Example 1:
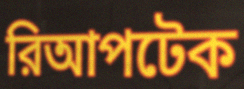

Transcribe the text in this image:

রিআপটেক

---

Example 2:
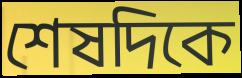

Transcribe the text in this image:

শেষদিকে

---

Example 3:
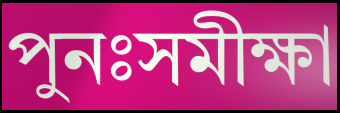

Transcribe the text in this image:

পুনঃসমীক্ষা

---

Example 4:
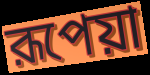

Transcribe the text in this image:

রূপেয়া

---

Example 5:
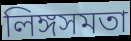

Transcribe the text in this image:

লিঙ্গসমতা